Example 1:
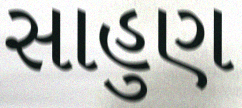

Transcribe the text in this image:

સાહુણ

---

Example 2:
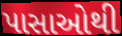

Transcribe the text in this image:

પાસાઓથી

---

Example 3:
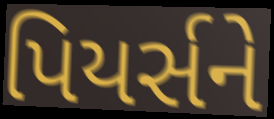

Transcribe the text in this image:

પિયર્સને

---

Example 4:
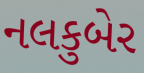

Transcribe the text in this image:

નલકુબેર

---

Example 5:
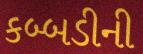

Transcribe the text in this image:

કબ્બડીની